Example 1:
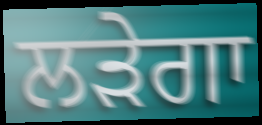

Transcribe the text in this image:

ਲੜੇਗਾ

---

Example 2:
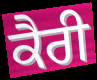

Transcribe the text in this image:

ਕੈਰੀ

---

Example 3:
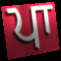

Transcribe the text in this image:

ਪਾ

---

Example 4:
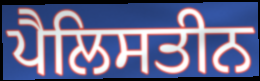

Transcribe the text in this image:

ਪੈਲਿਸਤੀਨ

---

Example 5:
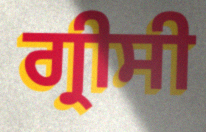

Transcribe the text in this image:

ਗ੍ਰੀਸੀ